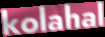
kolahal